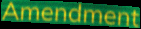
Amendment